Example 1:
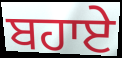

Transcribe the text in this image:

ਬਹਾਏ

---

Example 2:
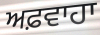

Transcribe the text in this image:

ਅਫ਼ਵਾਹਾ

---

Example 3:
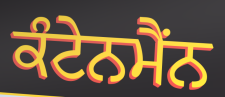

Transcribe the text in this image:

ਕੰਟੇਨਮੈਂਨ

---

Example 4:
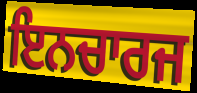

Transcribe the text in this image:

ਇਨਚਾਰਜ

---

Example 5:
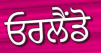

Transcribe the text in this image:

ਓਰਲੈਂਡੋ